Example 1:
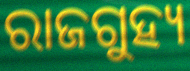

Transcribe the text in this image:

ରାଜଗୁହ୍ୟ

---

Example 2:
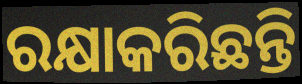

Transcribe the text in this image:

ରକ୍ଷାକରିଛନ୍ତି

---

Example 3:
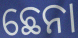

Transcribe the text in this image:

ଛେନା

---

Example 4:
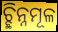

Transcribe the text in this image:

ଚ୍ଛିନ୍ନମୂଳ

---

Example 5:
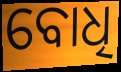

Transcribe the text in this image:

ବୋଧି